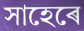
সাহেৰে